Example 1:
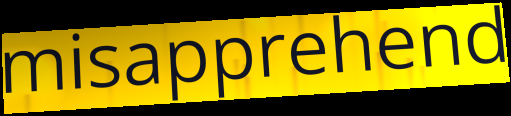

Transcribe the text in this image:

misapprehend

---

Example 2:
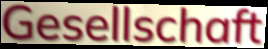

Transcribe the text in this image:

Gesellschaft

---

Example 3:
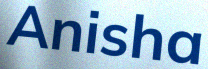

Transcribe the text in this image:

Anisha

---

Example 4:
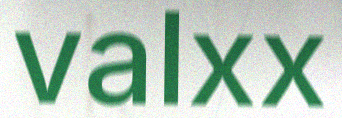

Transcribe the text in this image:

valxx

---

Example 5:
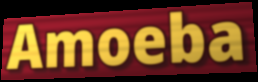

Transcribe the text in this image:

Amoeba